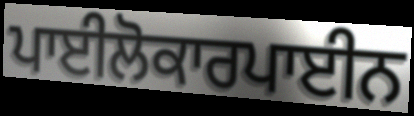
ਪਾਈਲੋਕਾਰਪਾਈਨ